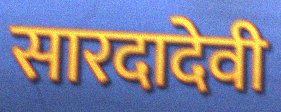
सारदादेवी